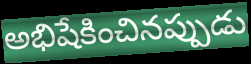
అభిషేకించినప్పుడు